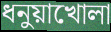
ধনুয়াখোলা